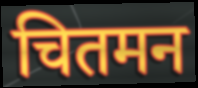
चितमन